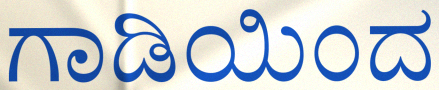
ಗಾಡಿಯಿಂದ